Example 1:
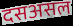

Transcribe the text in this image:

दसअसल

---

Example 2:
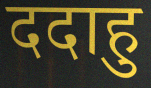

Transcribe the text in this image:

ददाहु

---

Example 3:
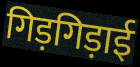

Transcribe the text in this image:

गिड़गिड़ाई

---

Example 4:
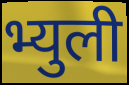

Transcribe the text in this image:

भ्युली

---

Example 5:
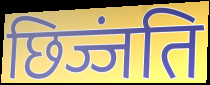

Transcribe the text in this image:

छिज्जंति